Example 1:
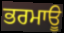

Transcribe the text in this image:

ਭਰਮਾਊ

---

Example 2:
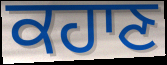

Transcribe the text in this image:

ਕਹਾਣ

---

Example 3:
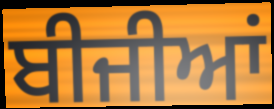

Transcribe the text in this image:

ਬੀਜੀਆਂ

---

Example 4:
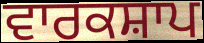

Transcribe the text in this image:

ਵਾਰਕਸ਼ਾਪ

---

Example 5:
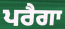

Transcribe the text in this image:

ਪਰੈਗਾ